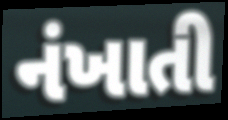
નંખાતી